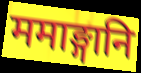
ममाङ्गानि